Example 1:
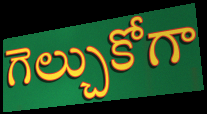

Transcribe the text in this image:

గెల్చుకోగా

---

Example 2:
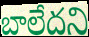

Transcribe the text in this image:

బాలేదని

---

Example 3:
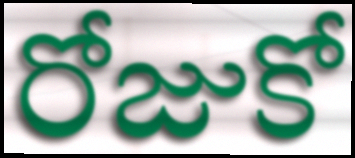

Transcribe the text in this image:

రోజుకో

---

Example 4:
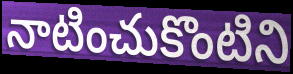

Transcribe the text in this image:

నాటించుకొంటిని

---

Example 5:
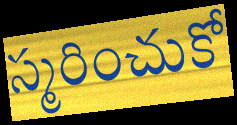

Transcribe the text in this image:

స్మరించుకో